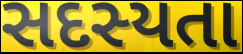
સદસ્યતા